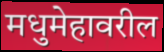
मधुमेहावरील